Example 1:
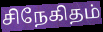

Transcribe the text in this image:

சிநேகிதம்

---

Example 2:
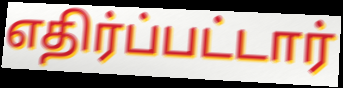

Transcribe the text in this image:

எதிர்ப்பட்டார்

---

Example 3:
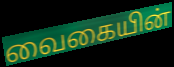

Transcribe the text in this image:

வைகையின்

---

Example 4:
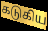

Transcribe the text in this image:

கடுகிய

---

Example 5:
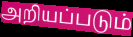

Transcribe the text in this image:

அறியப்படும்